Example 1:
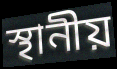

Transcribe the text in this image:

স্থানীয়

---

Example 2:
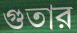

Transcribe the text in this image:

গুতার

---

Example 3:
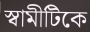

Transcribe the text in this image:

স্বামীটিকে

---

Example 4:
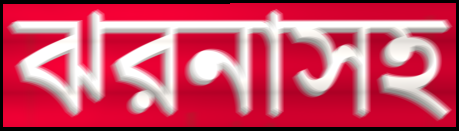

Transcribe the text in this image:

ঝরনাসহ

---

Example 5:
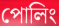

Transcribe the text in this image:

পোলিং